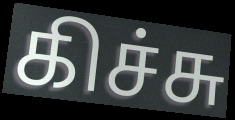
கிச்சு